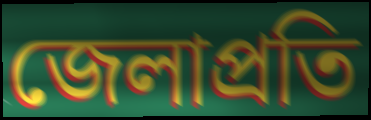
জেলাপ্রতি